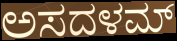
ಅಸದಳಮ್